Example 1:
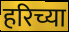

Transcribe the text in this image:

हरिच्या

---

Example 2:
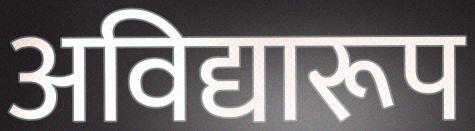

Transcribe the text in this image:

अविद्यारूप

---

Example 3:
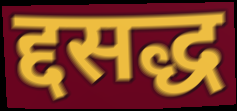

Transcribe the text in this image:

द्दसद्ध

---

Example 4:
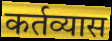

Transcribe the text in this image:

कर्तव्यास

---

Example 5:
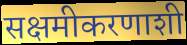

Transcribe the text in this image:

सक्षमीकरणाशी